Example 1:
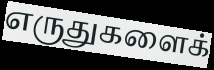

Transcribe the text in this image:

எருதுகளைக்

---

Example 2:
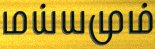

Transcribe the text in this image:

மய்யமும்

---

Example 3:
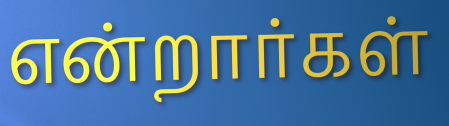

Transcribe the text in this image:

என்றார்கள்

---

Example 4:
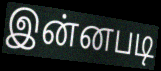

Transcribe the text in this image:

இன்னபடி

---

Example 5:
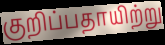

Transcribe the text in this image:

குறிப்பதாயிற்று